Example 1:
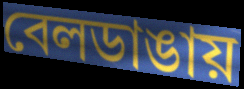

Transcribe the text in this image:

বেলডাঙায়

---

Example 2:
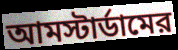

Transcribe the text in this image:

আমস্টার্ডামের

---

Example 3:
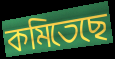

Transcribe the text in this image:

কমিতেছে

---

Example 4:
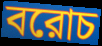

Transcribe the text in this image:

বরোচ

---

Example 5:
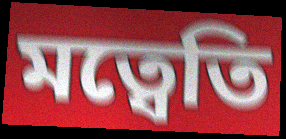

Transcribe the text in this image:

মত্বেতি